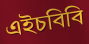
এইচবিবি